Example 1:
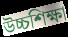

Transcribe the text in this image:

উচ্চশিক্ষা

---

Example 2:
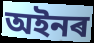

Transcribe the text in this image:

অইনৰ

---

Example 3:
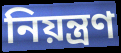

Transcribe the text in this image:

নিয়ন্ত্ৰণ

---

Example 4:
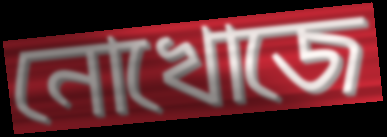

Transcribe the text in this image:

নোখোজে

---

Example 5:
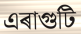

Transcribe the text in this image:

এৰাগুটি